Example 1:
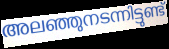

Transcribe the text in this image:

അലഞ്ഞുനടന്നിട്ടുണ്ട്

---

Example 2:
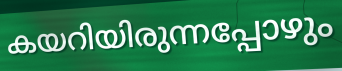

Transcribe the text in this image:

കയറിയിരുന്നപ്പോഴും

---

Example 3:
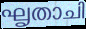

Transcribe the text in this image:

ഘൃതാചി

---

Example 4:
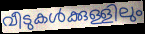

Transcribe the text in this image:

വീടുകൾക്കുള്ളിലും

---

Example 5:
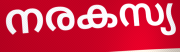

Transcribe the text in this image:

നരകസ്യ